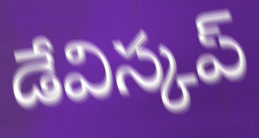
డేవిస్కప్